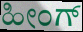
ಹೀಂಗ್